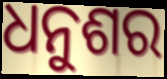
ଧନୁଶର